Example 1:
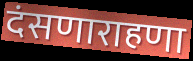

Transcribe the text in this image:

दंसणाराहणा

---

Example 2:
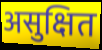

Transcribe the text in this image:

असुक्षित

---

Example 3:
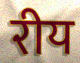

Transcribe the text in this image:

रीय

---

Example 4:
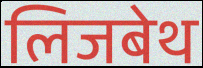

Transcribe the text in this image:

लिजबेथ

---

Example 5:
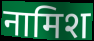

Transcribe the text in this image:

नामिश